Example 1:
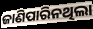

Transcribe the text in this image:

ଜାଣିପାରିନଥିଲା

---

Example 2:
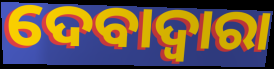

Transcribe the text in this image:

ଦେବାଦ୍ବାରା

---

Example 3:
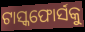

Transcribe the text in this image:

ଟାସ୍କଫୋର୍ସକୁ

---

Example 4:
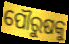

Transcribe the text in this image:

ପୌରୁଷକୁ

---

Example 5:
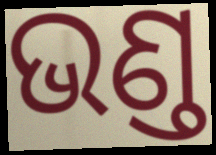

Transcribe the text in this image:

ଭଣ୍ଡ